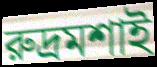
রুদ্রমশাই